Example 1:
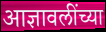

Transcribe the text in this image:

आज्ञावलींच्या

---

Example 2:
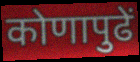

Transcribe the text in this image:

कोणापुढें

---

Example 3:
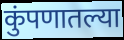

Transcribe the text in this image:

कुंपणातल्या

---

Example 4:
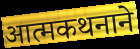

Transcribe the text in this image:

आत्मकथनाने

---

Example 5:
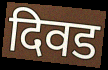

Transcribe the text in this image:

दिवड